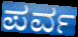
ಪರ್ವ